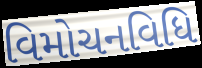
વિમોચનવિધિ